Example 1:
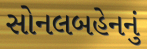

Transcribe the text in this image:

સોનલબહેનનું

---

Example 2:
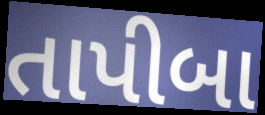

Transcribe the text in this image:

તાપીબા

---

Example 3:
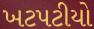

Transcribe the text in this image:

ખટપટીયો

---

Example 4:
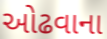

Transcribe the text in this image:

ઓઢવાના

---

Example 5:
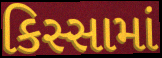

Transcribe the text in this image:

કિસ્સામાં